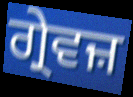
ਗ੍ਰੇਵਜ਼